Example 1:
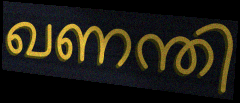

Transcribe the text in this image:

ഖണന്തി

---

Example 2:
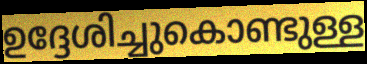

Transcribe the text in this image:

ഉദ്ദേശിച്ചുകൊണ്ടുള്ള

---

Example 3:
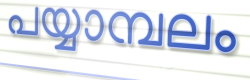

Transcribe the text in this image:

പയ്യാമ്പലം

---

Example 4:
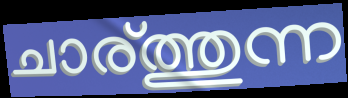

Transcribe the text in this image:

ചാര്ത്തുന്ന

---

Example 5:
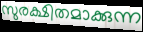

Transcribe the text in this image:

സുരക്ഷിതമാക്കുന്ന